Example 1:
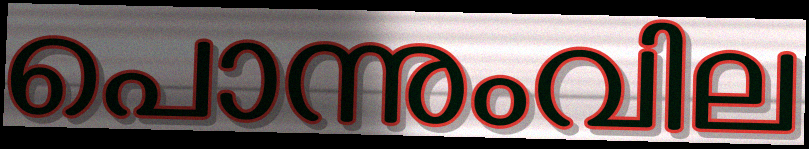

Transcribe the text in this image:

പൊന്നുംവില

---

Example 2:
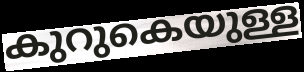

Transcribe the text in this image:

കുറുകെയുള്ള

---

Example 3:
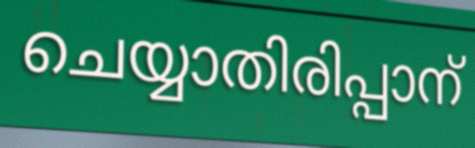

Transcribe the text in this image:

ചെയ്യാതിരിപ്പാന്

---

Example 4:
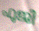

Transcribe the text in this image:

ഫുജി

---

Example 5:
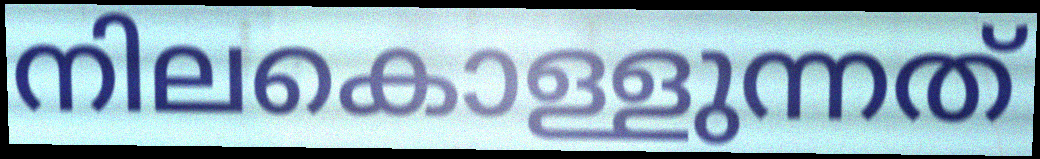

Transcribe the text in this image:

നിലകൊള്ളുന്നത്